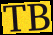
TB